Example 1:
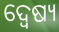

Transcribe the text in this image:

ଦ୍ୱେଷ୍ୟ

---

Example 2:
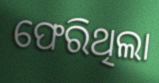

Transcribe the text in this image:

ଫେରିଥିଲା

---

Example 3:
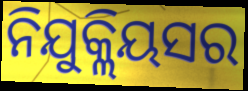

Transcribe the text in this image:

ନିଯୁକ୍ଲିୟସର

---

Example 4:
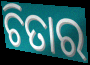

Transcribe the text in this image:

ଚିତାର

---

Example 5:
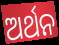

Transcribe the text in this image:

ଅର୍ଥନ